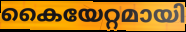
കൈയേറ്റമായി